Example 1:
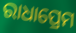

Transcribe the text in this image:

ରାଧାପ୍ରେମ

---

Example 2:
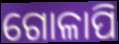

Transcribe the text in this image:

ଗୋଳାପି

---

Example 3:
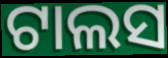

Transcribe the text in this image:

ଟାଲସ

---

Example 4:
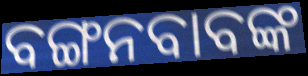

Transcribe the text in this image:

ବଙ୍ଗନବାବଙ୍କ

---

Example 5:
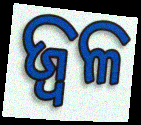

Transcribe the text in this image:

ଜ୍ୱଳ